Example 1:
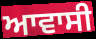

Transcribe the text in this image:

ਆਵਾਸੀ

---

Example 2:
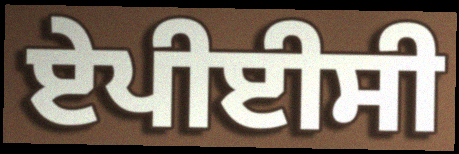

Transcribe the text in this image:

ਏਪੀਈਸੀ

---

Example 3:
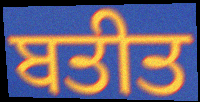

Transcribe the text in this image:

ਬਤੀਤ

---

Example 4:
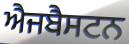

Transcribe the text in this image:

ਐਜਬੈਸਟਨ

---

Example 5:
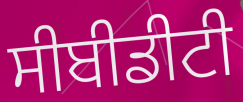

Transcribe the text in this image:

ਸੀਬੀਡੀਟੀ